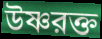
উষ্ণরক্ত